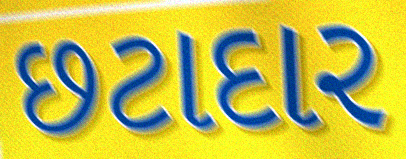
છટાદાર